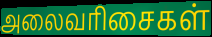
அலைவரிசைகள்